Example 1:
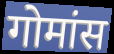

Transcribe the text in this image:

गोमांस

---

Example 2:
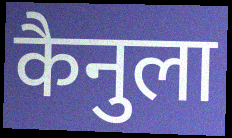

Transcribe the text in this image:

कैनुला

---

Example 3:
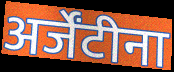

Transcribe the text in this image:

अर्जेंटीना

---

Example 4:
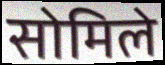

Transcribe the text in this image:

सोमिले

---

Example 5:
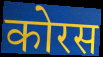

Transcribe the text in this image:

कोरस